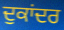
ਦੁਕਾਂਦਰ